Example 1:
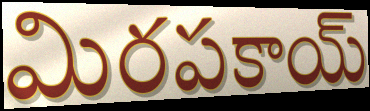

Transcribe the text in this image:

మిరపకాయ్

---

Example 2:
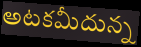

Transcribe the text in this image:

అటకమీదున్న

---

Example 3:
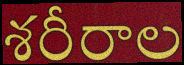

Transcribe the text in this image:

శరీరాల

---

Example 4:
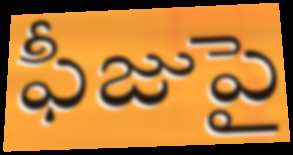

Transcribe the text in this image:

ఫీజుపై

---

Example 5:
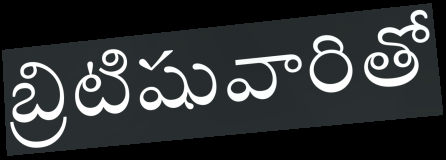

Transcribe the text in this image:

బ్రిటిషువారితో